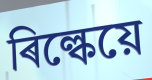
ৰিল্কেয়ে